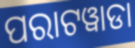
ପରାଟୱାଡା